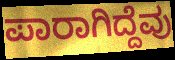
ಪಾರಾಗಿದ್ದೆವು